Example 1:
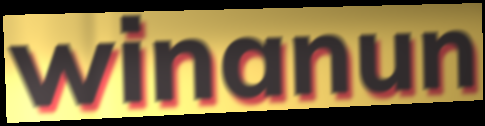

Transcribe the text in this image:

winanun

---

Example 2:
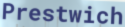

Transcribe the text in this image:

Prestwich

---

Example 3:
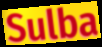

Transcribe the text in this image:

Sulba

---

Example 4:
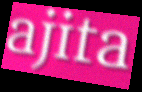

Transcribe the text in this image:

ajita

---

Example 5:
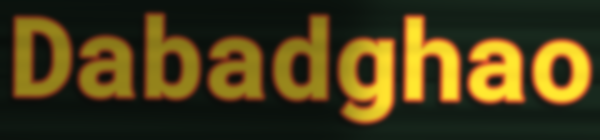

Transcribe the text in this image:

Dabadghao